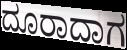
ದೂರಾದಾಗ